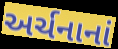
અર્ચનાનાં